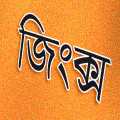
জিংক্স